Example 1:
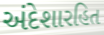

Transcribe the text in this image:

અંદેશારહિત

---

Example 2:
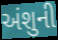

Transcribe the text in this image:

અંશુની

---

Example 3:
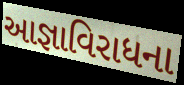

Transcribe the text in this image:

આજ્ઞાવિરાધના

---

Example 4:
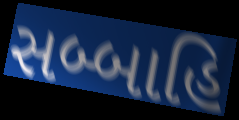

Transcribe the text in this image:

સબ્બાહિ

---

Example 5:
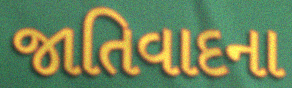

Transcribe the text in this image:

જાતિવાદના